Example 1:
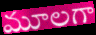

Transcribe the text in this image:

మూలగా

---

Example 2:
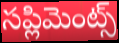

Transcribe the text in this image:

సప్లిమెంట్స్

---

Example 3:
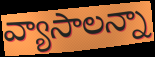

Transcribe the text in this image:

వ్యాసాలన్నా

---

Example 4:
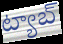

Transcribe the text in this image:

ట్యాబ్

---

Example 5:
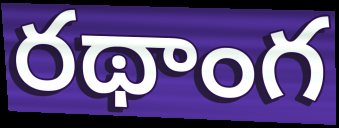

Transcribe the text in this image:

రథాంగ